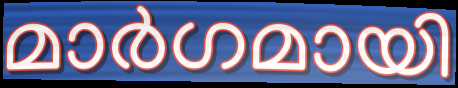
മാർഗമായി